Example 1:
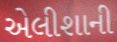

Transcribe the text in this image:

એલીશાની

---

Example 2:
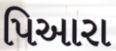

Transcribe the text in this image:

પિઆરા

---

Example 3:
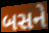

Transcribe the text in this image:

બસને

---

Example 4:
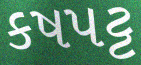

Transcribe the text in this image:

કષપટ્ટ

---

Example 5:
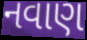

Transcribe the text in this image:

નવાણ